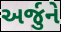
અર્જુને